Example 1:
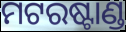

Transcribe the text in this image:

ମଟରଷ୍ଟାଣ୍ଡ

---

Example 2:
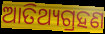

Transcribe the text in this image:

ଆତିଥ୍ୟଗ୍ରହଣ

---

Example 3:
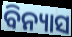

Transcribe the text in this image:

ବିନ୍ୟାସ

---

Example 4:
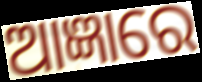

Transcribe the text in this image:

ଆଜ୍ଞାରେ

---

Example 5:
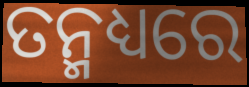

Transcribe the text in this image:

ତନ୍ମଧ୍ୟରେ